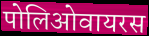
पोलिओवायरस